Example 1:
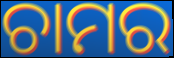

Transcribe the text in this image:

ଚାମର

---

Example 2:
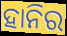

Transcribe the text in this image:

ହାନିର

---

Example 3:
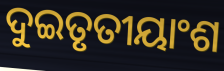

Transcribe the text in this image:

ଦୁଇତୃତୀୟାଂଶ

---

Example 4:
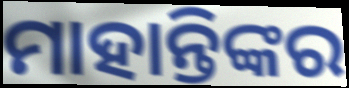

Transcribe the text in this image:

ମାହାନ୍ତିଙ୍କର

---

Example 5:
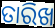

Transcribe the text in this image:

ତାରିଖ